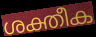
ശക്തീക